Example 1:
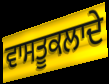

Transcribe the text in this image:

ਵਾਸਤੂਕਲਾਦੇ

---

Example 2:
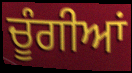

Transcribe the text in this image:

ਚੂੰਗੀਆਂ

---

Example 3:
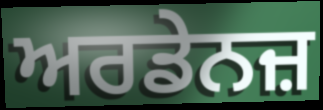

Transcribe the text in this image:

ਅਰਡੇਨਜ਼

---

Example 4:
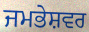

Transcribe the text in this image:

ਜਮਭੇਸ਼ਵਰ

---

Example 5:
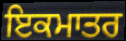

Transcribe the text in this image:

ਇਕਮਾਤਰ